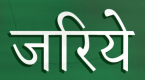
जरिये